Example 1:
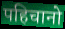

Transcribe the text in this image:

पहिचानो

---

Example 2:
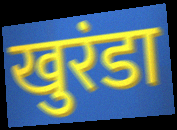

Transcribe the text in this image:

खुरंडा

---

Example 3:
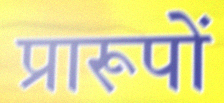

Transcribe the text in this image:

प्रारूपों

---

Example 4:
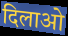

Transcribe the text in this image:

दिलाओ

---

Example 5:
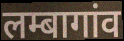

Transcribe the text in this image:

लम्बागांव